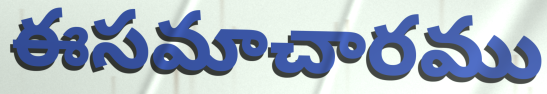
ఈసమాచారము